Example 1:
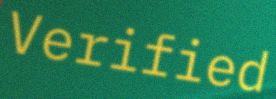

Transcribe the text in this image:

Verified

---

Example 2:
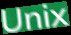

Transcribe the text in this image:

Unix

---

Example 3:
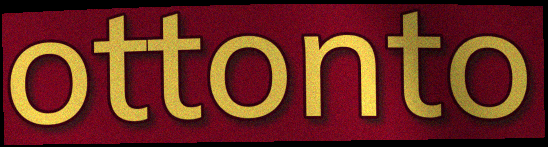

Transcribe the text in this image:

ottonto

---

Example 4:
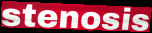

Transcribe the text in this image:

stenosis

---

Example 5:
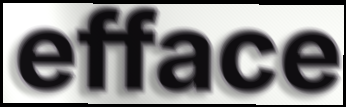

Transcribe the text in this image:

efface